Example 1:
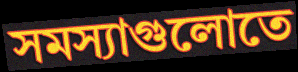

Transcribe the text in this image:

সমস্যাগুলোতে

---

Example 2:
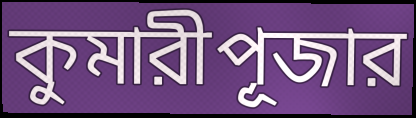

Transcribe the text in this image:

কুমারীপূজার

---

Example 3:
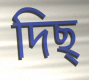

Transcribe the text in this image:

দিছ্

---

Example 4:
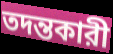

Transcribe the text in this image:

তদন্তকারী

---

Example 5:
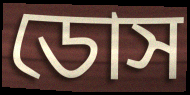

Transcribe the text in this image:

ডোস